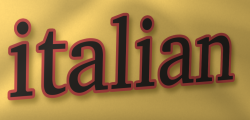
italian